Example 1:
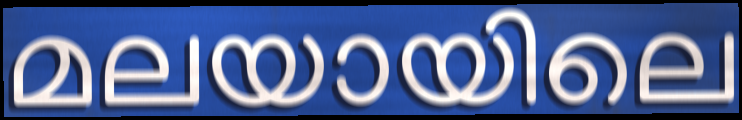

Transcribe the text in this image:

മലയായിലെ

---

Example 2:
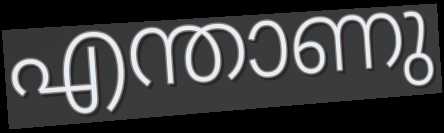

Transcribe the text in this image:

എന്താണു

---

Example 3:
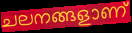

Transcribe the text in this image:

ചലനങ്ങളാണ്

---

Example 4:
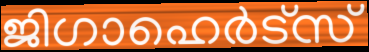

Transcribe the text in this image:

ജിഗാഹെർട്സ്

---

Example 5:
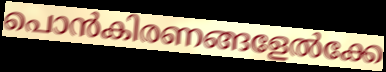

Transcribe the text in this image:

പൊൻകിരണങ്ങളേൽക്കേ